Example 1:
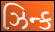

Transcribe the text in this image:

ઝિન્ક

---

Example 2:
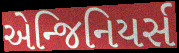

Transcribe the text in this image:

એન્જિનિયર્સ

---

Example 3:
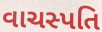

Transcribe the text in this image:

વાચસ્પતિ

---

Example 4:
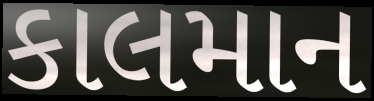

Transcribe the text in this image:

કાલમાન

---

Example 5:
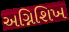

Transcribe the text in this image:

અગ્નિશિખ